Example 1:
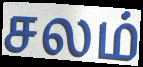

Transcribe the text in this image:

சலம்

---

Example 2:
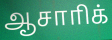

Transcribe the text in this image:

ஆசாரிக்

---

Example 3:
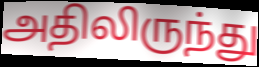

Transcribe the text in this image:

அதிலிருந்து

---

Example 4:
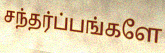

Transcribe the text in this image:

சந்தர்ப்பங்களே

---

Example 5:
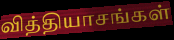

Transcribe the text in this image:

வித்தியாசங்கள்